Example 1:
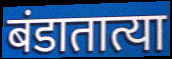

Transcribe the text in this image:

बंडातात्या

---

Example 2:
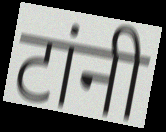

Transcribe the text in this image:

टांनी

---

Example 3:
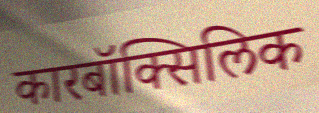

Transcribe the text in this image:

कारबॉक्सिलिक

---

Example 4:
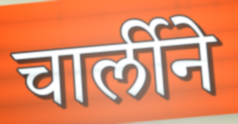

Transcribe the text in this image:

चार्लीने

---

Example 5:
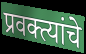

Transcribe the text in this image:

प्रवक्त्यांचे